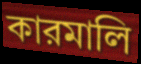
কারমালি